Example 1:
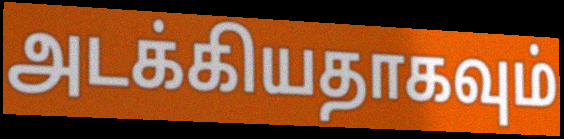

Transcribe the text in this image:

அடக்கியதாகவும்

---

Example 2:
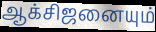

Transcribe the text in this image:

ஆக்சிஜனையும்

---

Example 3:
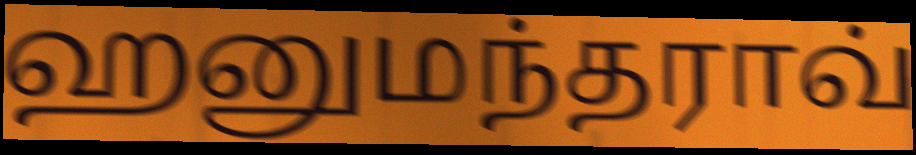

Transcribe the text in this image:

ஹனுமந்தராவ்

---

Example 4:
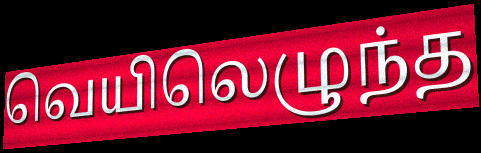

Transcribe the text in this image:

வெயிலெழுந்த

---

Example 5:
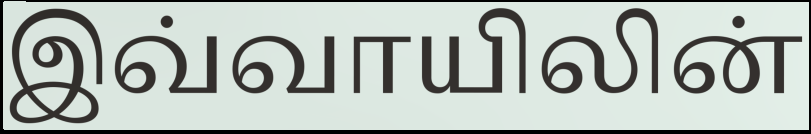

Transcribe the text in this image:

இவ்வாயிலின்